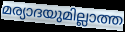
മര്യാദയുമില്ലാത്ത